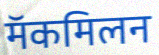
मॅकमिलन